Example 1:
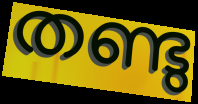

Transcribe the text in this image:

തണ്ടു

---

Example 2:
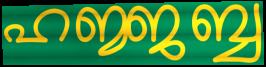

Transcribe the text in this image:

ഹജ്ജബ്ബ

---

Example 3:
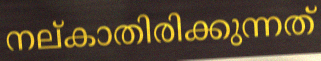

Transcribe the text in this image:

നല്കാതിരിക്കുന്നത്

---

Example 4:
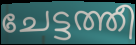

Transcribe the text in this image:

ചേട്ടത്തീ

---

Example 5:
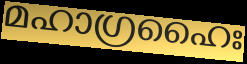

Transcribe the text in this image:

മഹാഗ്രഹൈഃ